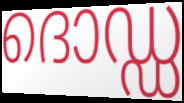
ദൊഡ്ഡ